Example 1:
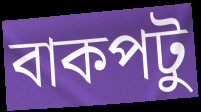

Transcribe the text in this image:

বাকপটু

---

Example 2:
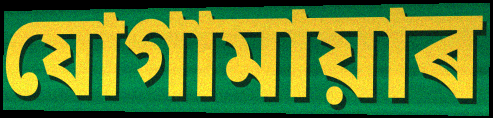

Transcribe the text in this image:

যোগামায়াৰ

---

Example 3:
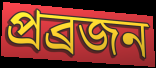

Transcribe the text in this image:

প্ৰব্ৰজন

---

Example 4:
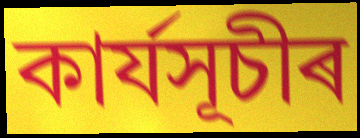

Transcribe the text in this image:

কাৰ্যসূচীৰ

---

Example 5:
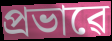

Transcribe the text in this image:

প্ৰভাৱে